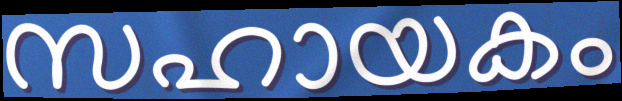
സഹായകം